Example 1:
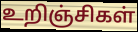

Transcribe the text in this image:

உறிஞ்சிகள்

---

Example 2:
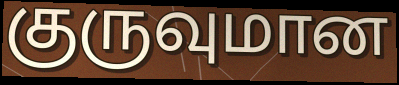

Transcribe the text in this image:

குருவுமான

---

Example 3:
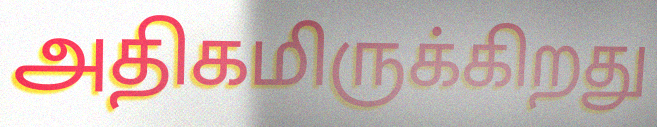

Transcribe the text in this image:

அதிகமிருக்கிறது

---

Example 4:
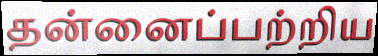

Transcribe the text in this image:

தன்னைப்பற்றிய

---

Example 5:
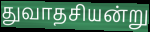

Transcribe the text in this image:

துவாதசியன்று